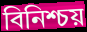
বিনিশ্চয়